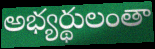
అభ్యర్థులంతా